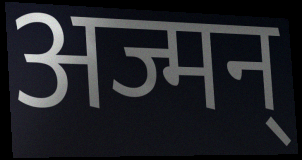
अज्मन्